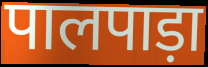
पालपाड़ा